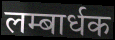
लम्बार्धक